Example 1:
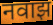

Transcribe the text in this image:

नवाझ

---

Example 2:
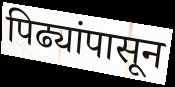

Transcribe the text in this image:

पिढ्यांपासून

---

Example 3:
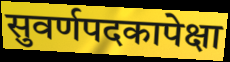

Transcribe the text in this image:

सुवर्णपदकापेक्षा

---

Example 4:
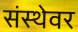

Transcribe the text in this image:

संस्थेवर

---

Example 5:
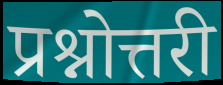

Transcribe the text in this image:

प्रश्नोत्तरी